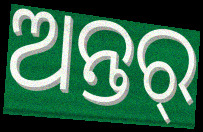
ଅନ୍ତର୍